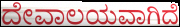
ದೇವಾಲಯವಾಗಿದೆ